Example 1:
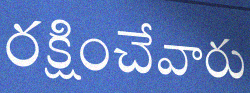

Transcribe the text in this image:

రక్షించేవారు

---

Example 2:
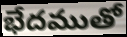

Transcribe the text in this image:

భేదముతో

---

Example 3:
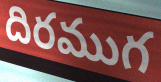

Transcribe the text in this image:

దిరముగ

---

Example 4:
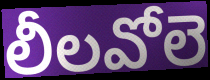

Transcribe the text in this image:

లీలవోలె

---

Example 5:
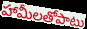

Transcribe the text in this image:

హామీలతోపాటు